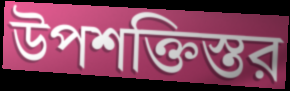
উপশক্তিস্তর